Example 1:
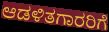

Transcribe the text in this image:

ಆಡಳಿತಗಾರರಿಗೆ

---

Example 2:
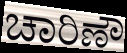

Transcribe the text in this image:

ಚಾರಿಣೌ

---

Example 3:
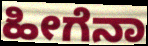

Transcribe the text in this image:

ಹೀಗೆನಾ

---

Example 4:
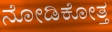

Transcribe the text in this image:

ನೋಡಿಕೋತ್ತ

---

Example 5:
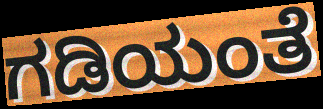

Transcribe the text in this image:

ಗಡಿಯಂತೆ